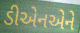
ડીએનએને